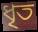
ধৃত